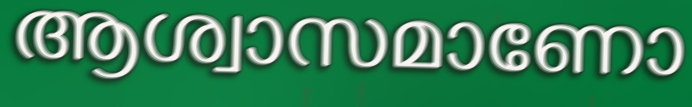
ആശ്വാസമാണോ